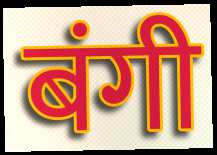
बंगी